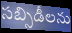
సబ్సిడీలను